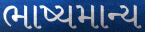
ભાષ્યમાન્ય